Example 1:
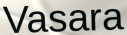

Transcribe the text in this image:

Vasara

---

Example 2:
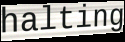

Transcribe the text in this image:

halting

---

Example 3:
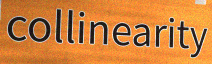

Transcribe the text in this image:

collinearity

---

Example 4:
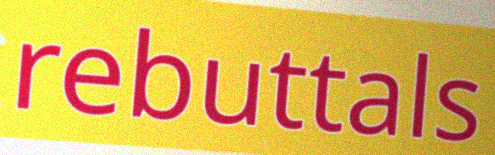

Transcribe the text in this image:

rebuttals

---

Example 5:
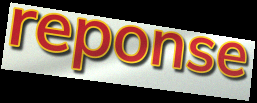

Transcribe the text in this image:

reponse